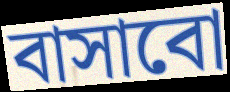
বাসাবো